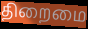
திறைமை